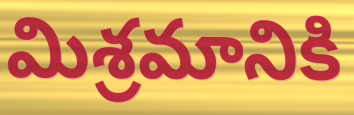
మిశ్రమానికి